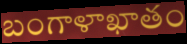
బంగాళాఖాతం